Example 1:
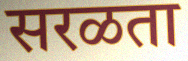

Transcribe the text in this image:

सरळता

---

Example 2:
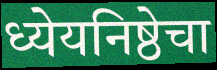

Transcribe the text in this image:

ध्येयनिष्ठेचा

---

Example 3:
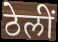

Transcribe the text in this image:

ठेलीं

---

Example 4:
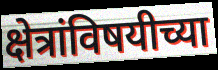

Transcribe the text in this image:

क्षेत्रांविषयीच्या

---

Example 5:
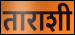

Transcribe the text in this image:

ताराशी